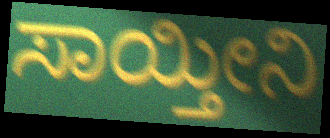
ಸಾಯ್ತೀನಿ